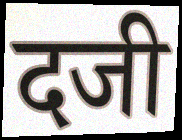
दजी